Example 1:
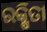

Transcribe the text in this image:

ରକ୍ଷିତା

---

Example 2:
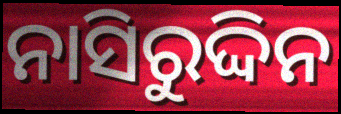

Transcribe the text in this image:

ନାସିରୁଦ୍ଦିନ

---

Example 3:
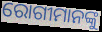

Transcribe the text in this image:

ରୋଗୀମାନଙ୍କୁ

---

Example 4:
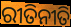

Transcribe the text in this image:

ରୀତିନୀତି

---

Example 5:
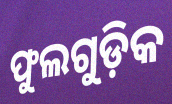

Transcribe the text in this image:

ଫୁଲଗୁଡ଼ିକ